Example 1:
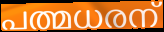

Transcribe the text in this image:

പത്മധരന്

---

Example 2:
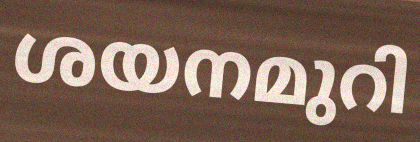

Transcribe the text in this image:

ശയനമുറി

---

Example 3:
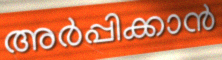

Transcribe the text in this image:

അർപ്പിക്കാൻ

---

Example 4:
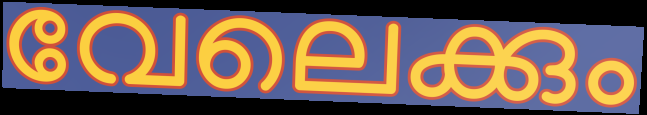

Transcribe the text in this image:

വേലെക്കും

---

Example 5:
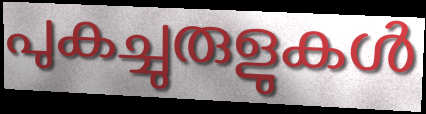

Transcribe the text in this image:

പുകച്ചുരുളുകൾ